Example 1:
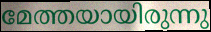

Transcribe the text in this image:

മേത്തയായിരുന്നു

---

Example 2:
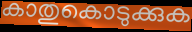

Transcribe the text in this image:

കാതുകൊടുക്കുക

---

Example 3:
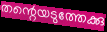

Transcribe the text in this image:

തന്റെയടുത്തേക്കു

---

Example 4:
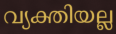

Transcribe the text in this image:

വ്യക്തിയല്ല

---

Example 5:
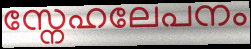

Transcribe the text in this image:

സ്നേഹലേപനം